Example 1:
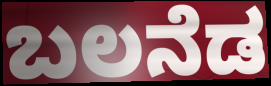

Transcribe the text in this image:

ಬಲನೆಡ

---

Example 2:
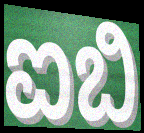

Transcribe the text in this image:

ಐಬಿ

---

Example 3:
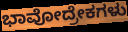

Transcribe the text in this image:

ಭಾವೋದ್ರೇಕಗಳು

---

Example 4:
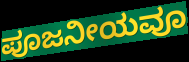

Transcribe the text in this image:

ಪೂಜನೀಯವೂ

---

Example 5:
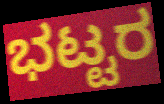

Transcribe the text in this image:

ಭಟ್ಟರ